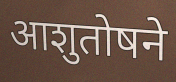
आशुतोषने